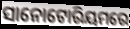
ସାନୋଟୋରିୟମରେ